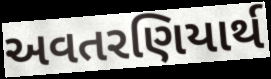
અવતરણિયાર્થ